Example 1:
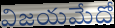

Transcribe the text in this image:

విజయమేదో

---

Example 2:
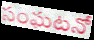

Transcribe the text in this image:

సంఘటనో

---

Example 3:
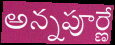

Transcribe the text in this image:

అన్నపూర్ణే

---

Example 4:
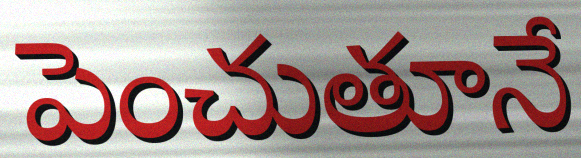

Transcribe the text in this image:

పెంచుతూనే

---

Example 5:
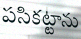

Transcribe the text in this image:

పసికట్టాను